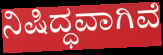
ನಿಷಿದ್ಧವಾಗಿವೆ